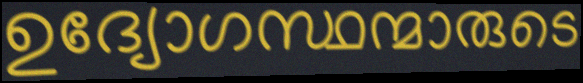
ഉദ്യോഗസ്ഥന്മാരുടെ